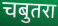
चबुतरा